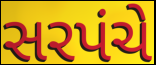
સરપંચે